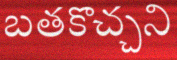
బతకొచ్చని